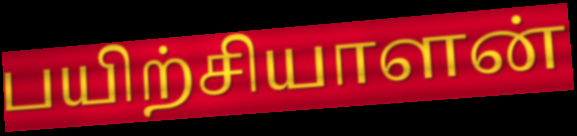
பயிற்சியாளன்